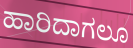
ಹಾರಿದಾಗಲೂ